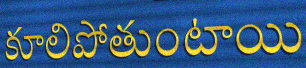
కూలిపోతుంటాయి